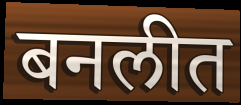
बनलीत